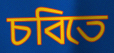
চবিতে